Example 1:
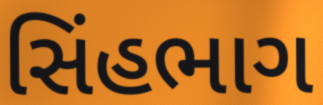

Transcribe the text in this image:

સિંહભાગ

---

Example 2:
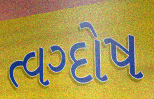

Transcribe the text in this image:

ત્વગ્દોષ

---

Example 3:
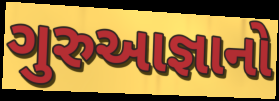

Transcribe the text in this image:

ગુરુઆજ્ઞાનો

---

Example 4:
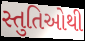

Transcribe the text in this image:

સ્તુતિઓથી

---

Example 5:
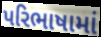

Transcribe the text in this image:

પરિભાષામાં